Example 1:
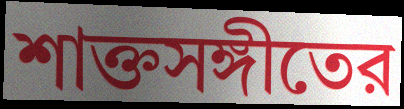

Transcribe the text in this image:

শাক্তসঙ্গীতের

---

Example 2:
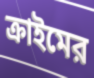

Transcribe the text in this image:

ক্রাইমের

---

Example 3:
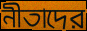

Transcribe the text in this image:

নীতাদের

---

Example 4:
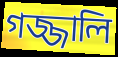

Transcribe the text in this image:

গজ্জালি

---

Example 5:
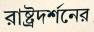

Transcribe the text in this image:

রাষ্ট্রদর্শনের